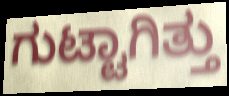
ಗುಟ್ಟಾಗಿತ್ತು